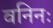
वनिनः